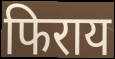
फिराय